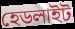
হেডলাইট